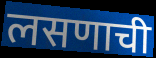
लसणाची